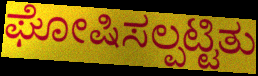
ಘೋಷಿಸಲ್ಪಟ್ಟಿತು